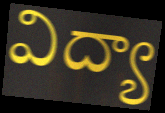
విద్యా